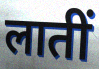
लातीं